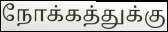
நோக்கத்துக்கு